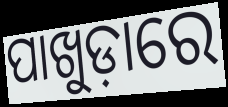
ପାଖୁଡ଼ାରେ